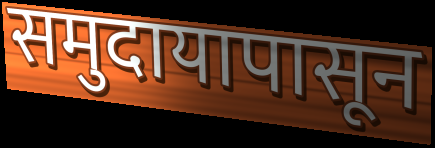
समुदायापासून